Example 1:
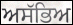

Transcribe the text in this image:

ਅਸੱਭਿਅ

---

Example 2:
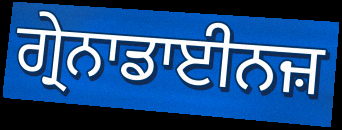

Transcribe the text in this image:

ਗ੍ਰੇਨਾਡਾਈਨਜ਼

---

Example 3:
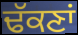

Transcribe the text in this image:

ਢੱਕਣਾਂ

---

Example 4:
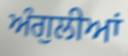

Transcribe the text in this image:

ਅੰਗੁਲੀਆਂ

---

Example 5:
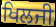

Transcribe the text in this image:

ਖਿਲਜੀ